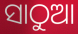
ସାଠୁଆ